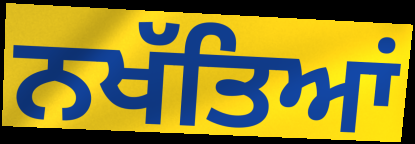
ਨਖੱਤਿਆਂ